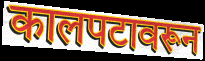
कालपटावरून